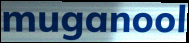
muganool